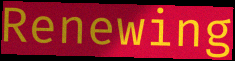
Renewing